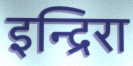
इन्द्रिरा